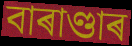
বাৰাণ্ডাৰ